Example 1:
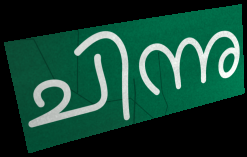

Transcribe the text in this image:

ചിന്നു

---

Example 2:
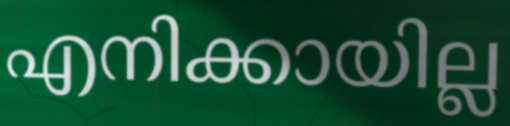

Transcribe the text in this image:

എനിക്കായില്ല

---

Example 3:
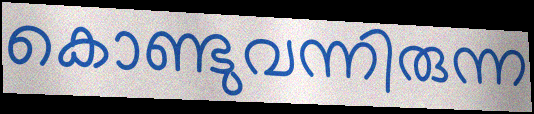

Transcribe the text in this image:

കൊണ്ടുവന്നിരുന്ന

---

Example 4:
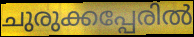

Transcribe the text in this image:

ചുരുക്കപ്പേരിൽ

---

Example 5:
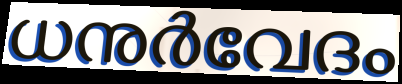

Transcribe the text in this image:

ധനുർവേദം